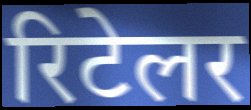
रिटेलर